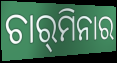
ଚାର୍‌ମିନାର